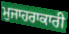
ਮੁਜਾਹਰਾਕਾਰੀ